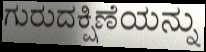
ಗುರುದಕ್ಷಿಣೆಯನ್ನು